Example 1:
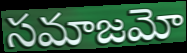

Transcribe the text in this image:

సమాజమో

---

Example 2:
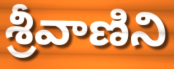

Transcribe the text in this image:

శ్రీవాణిని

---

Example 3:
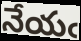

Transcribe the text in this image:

నేయఁ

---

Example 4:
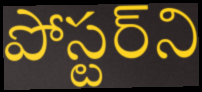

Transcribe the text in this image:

పోస్టర్‌ని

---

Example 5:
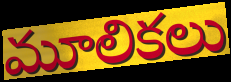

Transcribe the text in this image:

మూలికలు